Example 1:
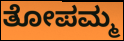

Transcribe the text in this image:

ತೋಪಮ್ಮ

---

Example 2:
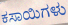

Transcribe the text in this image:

ಕಸಾಯಿಗಳು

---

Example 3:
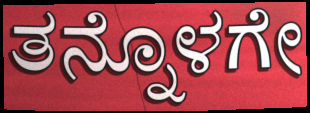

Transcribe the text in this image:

ತನ್ನೊಳಗೇ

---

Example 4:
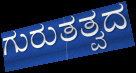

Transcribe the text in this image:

ಗುರುತತ್ವದ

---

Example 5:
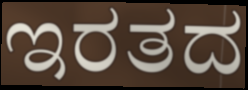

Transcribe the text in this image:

ಇರತದ